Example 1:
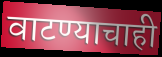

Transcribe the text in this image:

वाटण्याचाही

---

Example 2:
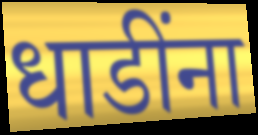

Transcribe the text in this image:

धाडींना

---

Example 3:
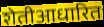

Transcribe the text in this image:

शेतीआधारित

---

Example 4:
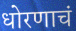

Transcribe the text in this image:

धोरणाचं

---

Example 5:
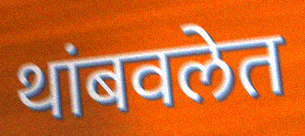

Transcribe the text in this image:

थांबवलेत